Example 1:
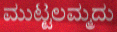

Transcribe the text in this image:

ಮುಟ್ಟಲಮ್ಮದು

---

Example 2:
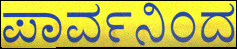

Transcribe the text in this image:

ಪಾರ್ವನಿಂದ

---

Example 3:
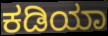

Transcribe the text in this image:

ಕಡಿಯಾ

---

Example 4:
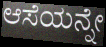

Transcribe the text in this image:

ಆಸೆಯನ್ನೇ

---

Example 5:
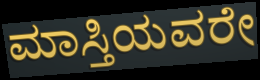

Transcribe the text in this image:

ಮಾಸ್ತಿಯವರೇ